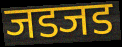
जडजड